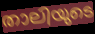
താലിയുടെ